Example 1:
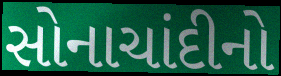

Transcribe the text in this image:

સોનાચાંદીનો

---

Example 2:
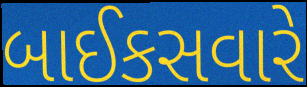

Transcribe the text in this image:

બાઈકસવારે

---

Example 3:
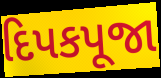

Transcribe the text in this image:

દિપકપૂજા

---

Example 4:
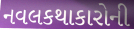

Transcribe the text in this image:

નવલકથાકારોની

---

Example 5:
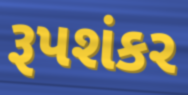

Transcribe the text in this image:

રૂપશંકર